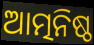
ଆତ୍ମନିଷ୍ଠ